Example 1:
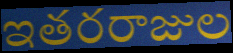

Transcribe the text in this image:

ఇతరరాజుల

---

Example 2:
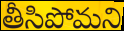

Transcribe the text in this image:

తీసిపోమని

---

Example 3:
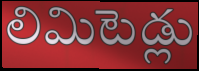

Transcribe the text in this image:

లిమిటెడ్లు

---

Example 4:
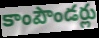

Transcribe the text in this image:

కాంపౌండర్లు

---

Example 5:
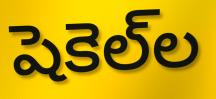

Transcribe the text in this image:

షెకెల్‌ల